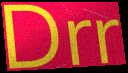
Drr